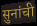
सुनांची